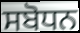
ਸਬੋਧਨ